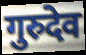
गुरुदेव